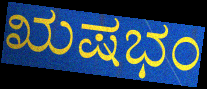
ಋಷಭಂ